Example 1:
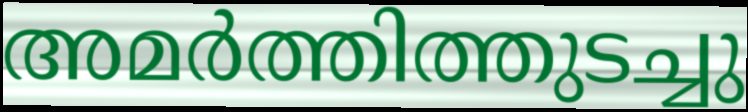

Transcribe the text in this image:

അമർത്തിത്തുടച്ചു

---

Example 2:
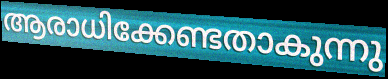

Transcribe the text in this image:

ആരാധിക്കേണ്ടതാകുന്നു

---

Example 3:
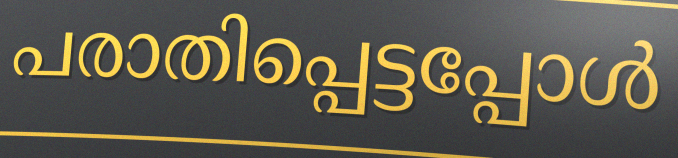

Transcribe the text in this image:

പരാതിപ്പെട്ടപ്പോൾ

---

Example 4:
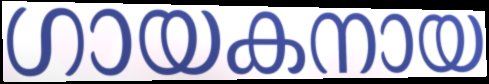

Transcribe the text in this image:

ഗായകനായ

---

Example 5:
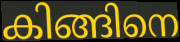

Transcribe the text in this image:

കിങ്ങിനെ